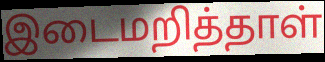
இடைமறித்தாள்